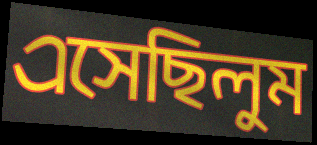
এসেছিলুম